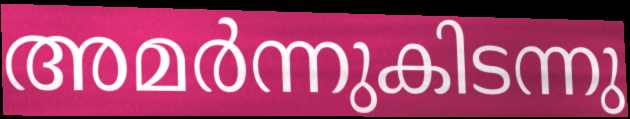
അമർന്നുകിടന്നു